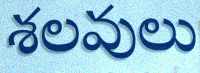
శలవులు